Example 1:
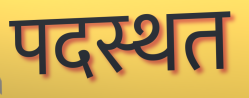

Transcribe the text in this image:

पदस्थत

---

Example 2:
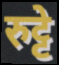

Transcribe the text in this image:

रुट्टे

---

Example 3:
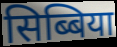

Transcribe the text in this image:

सिब्बिया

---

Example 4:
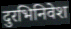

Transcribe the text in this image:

दुरभिनिवेश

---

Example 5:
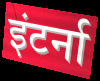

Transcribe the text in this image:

इंटर्ना